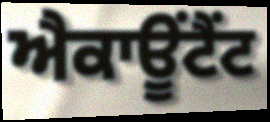
ਐਕਾਊਂਟੈਂਟ